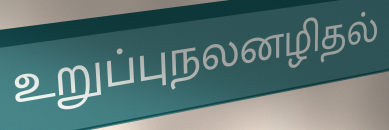
உறுப்புநலனழிதல்